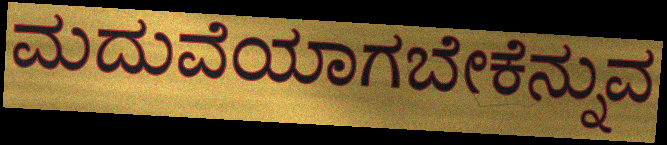
ಮದುವೆಯಾಗಬೇಕೆನ್ನುವ